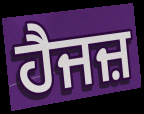
ਹੈਜਜ਼